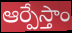
ఆర్పేస్తాం